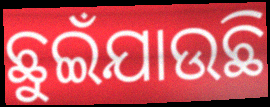
ଛୁଇଁଯାଉଛି